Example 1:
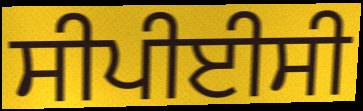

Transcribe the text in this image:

ਸੀਪੀਈਸੀ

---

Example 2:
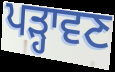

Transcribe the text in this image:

ਪੜ੍ਹਾਵਣ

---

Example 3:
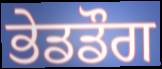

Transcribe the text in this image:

ਭੇਡਡੌਗ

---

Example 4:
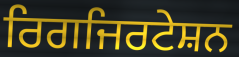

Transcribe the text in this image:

ਰਿਗਜਿਰਟੇਸ਼ਨ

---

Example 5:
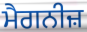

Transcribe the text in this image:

ਮੈਗਨੀਜ਼